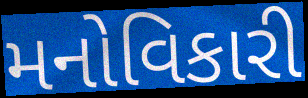
મનોવિકારી